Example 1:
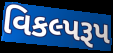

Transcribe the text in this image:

વિકલ્પરૂપ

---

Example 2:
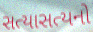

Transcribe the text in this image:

સત્યાસત્યનો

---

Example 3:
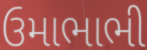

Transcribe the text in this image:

ઉમાભાભી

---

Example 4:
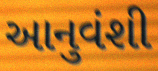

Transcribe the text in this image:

આનુવંશી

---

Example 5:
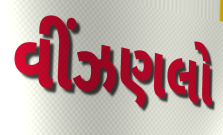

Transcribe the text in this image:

વીંઝણલો